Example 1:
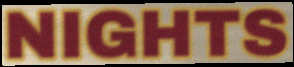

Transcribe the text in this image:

NIGHTS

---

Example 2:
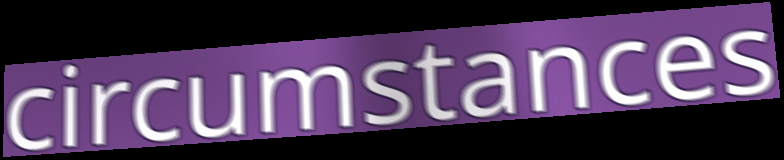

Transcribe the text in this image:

circumstances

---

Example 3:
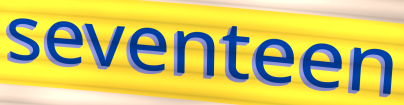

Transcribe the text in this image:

seventeen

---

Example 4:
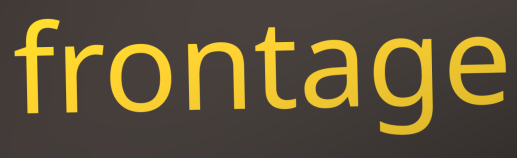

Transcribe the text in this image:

frontage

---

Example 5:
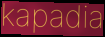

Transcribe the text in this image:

kapadia